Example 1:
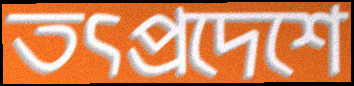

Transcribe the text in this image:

তৎপ্রদেশে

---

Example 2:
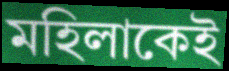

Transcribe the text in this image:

মহিলাকেই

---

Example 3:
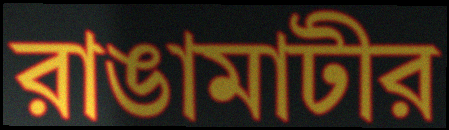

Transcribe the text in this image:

রাঙামাটীর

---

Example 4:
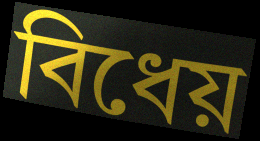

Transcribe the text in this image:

বিধেয়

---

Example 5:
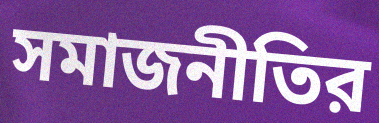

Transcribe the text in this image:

সমাজনীতির